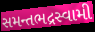
સમન્તભદ્રસ્વામી